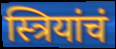
स्त्रियांचं